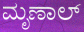
ಮೃಣಾಲ್